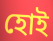
হোই